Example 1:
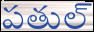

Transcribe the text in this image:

పతుల్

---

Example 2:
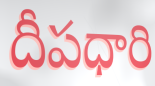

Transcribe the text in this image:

దీపధారి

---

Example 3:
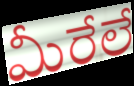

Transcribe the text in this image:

మీరేలే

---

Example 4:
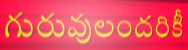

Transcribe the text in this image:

గురువులందరికీ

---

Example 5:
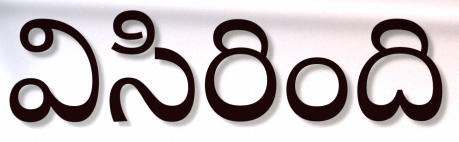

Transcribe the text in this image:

విసిరింది